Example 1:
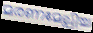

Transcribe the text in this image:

മരണമേല്പിച്ച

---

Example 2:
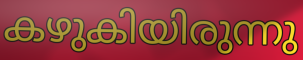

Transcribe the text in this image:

കഴുകിയിരുന്നു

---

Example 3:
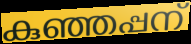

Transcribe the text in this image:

കുഞ്ഞപ്പന്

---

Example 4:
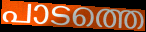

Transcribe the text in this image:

പാടത്തെ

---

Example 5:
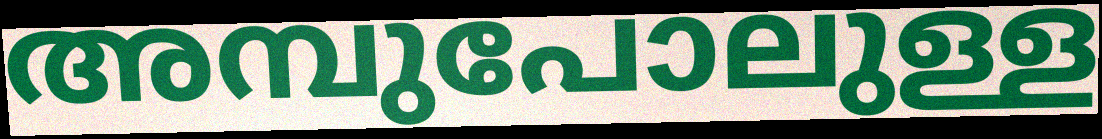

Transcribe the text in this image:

അമ്പുപോലുള്ള